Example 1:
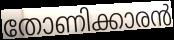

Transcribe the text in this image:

തോണിക്കാരൻ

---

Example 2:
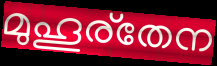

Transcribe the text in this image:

മുഹൂര്തേന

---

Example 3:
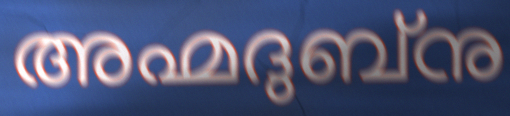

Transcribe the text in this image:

അഹ്മദുബ്നു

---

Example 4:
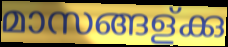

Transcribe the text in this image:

മാസങ്ങള്ക്കു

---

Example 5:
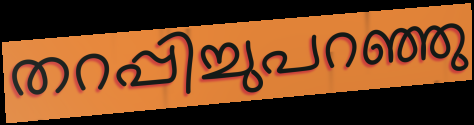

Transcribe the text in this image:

തറപ്പിച്ചുപറഞ്ഞു